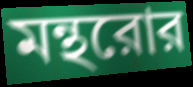
মন্থরোর